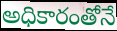
అధికారంతోనే